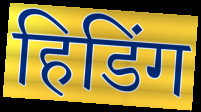
हिडिंग